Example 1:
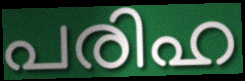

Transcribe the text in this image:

പരിഹ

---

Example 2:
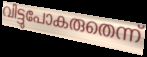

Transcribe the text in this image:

വിട്ടുപോകരുതെന്ന്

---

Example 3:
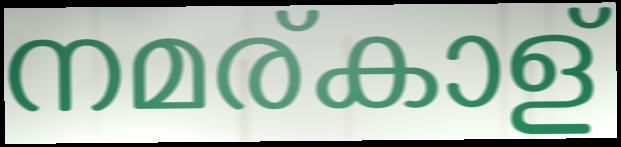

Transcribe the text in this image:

നമര്കാള്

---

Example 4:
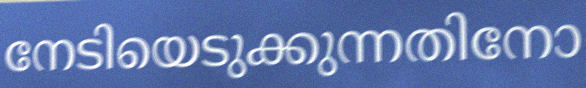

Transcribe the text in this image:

നേടിയെടുക്കുന്നതിനോ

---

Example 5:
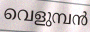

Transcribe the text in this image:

വെളുമ്പൻ